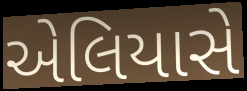
એલિયાસે